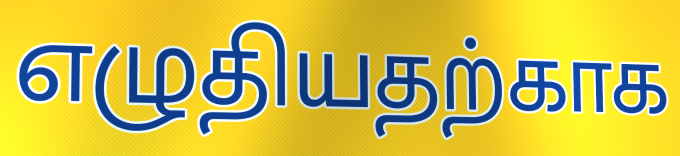
எழுதியதற்காக